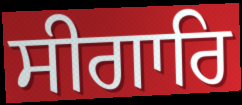
ਸੀਗਾਰਿ